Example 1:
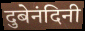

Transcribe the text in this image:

दुबेनंदिनी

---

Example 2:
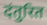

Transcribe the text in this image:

दंतुरित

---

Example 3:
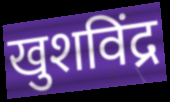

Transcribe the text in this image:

खुशविंद्र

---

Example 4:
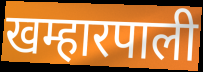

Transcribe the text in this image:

खम्हारपाली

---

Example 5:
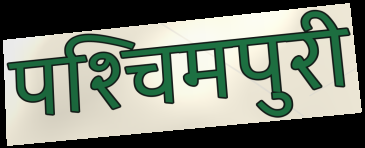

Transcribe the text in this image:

पश्चिमपुरी